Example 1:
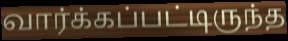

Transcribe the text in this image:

வார்க்கப்பட்டிருந்த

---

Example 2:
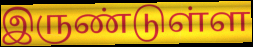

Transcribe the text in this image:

இருண்டுள்ள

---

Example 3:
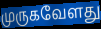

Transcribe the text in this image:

முருகவேளது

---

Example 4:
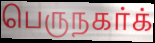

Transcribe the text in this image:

பெருநகர்க்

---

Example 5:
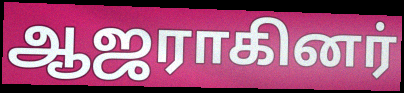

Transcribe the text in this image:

ஆஜராகினர்